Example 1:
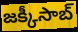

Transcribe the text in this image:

జక్కీసాబ్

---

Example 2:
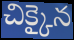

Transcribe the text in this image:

చిక్కైన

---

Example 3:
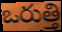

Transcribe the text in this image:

ఒరుత్తి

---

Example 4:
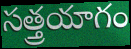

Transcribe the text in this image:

సత్త్రయాగం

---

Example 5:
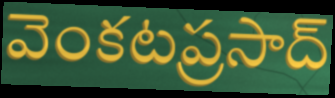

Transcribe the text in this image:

వెంకటప్రసాద్